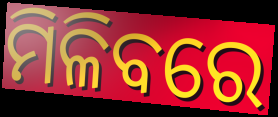
ମିଳିବରେ